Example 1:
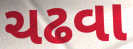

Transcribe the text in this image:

ચઢવા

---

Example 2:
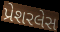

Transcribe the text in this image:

પ્રેશરલેસ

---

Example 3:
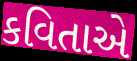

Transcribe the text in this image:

કવિતાએ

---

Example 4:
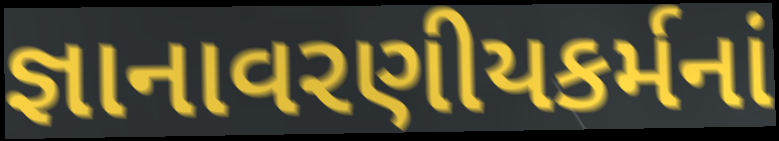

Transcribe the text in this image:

જ્ઞાનાવરણીયકર્મનાં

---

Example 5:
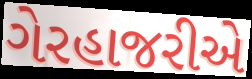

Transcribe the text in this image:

ગેરહાજરીએ